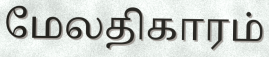
மேலதிகாரம்